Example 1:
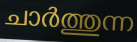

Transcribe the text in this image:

ചാർത്തുന്ന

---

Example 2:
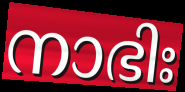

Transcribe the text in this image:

നാഭിഃ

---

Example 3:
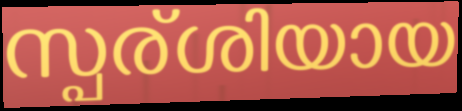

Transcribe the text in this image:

സ്പര്ശിയായ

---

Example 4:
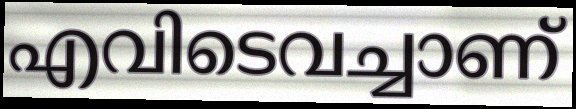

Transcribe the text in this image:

എവിടെവച്ചാണ്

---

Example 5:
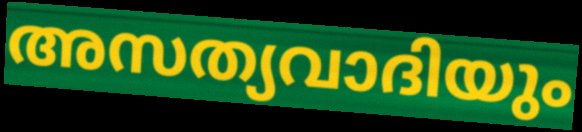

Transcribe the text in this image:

അസത്യവാദിയും